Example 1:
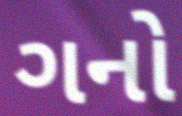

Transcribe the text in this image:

ગનો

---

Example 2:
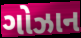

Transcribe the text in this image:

ગોઝાન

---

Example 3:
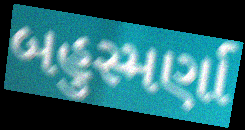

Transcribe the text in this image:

બહુસ્મર્ણા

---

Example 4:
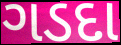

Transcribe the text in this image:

ગડદા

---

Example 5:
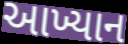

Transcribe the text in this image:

આખ્યાન